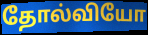
தோல்வியோ